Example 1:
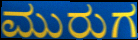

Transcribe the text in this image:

ಮುರುಗ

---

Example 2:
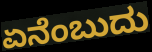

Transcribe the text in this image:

ಏನೆಂಬುದು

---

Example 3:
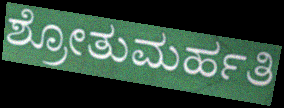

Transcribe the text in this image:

ಶ್ರೋತುಮರ್ಹತಿ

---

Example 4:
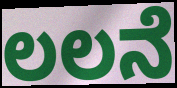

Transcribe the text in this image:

ಲಲನೆ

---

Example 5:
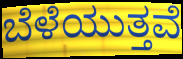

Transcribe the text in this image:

ಬೆಳೆಯುತ್ತವೆ